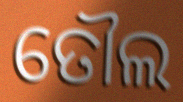
ତୌଲ